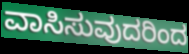
ವಾಸಿಸುವುದರಿಂದ